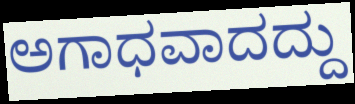
ಅಗಾಧವಾದದ್ದು